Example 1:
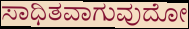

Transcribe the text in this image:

ಸಾಧಿತವಾಗುವುದೋ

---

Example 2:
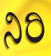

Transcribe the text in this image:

ನಿರಿ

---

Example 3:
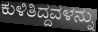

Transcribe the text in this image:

ಕುಳಿತಿದ್ದವಳನ್ನು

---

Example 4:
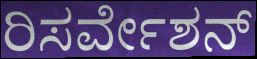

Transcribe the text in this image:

ರಿಸರ್ವೇಶನ್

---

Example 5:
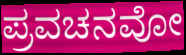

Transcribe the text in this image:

ಪ್ರವಚನವೋ